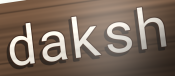
daksh